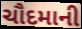
ચૌદમાની